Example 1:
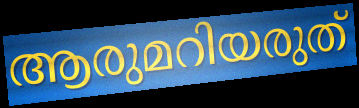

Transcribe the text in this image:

ആരുമറിയരുത്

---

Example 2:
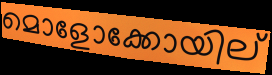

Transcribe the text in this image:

മൊളോക്കോയില്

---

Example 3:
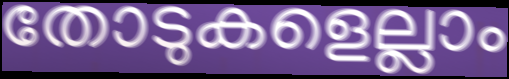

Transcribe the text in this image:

തോടുകളെല്ലാം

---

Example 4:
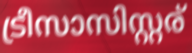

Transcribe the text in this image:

ട്രീസാസിസ്റ്റര്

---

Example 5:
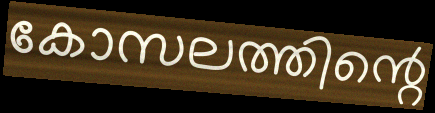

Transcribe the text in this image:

കോസലത്തിന്റെ